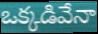
ఒక్కడివేనా